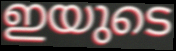
ഇയുടെ